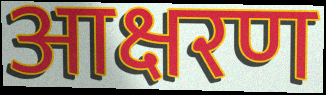
आक्षरण